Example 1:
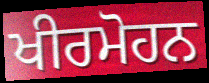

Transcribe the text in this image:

ਖੀਰਮੋਹਨ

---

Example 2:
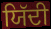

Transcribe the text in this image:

ਯਿੱਦੀ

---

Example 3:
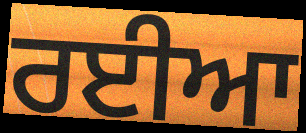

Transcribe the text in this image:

ਰਈਆ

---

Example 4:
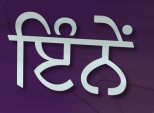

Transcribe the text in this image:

ਇੰਨੇਂ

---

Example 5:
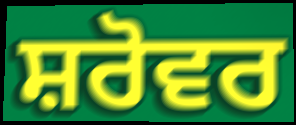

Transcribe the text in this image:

ਸ਼ਰੋਵਰ